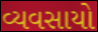
વ્યવસાયો